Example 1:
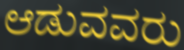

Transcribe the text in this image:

ಆಡುವವರು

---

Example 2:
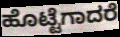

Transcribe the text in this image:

ಹೊಟ್ಟೆಗಾದರೆ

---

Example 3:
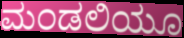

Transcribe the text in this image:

ಮಂಡಲಿಯೂ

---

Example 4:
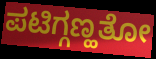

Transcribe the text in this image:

ಪಟಿಗ್ಗಣ್ಹತೋ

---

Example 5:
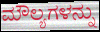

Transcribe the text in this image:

ಮೌಲ್ಯಗಳನ್ನು